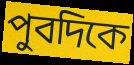
পুবদিকে